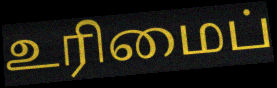
உரிமைப்